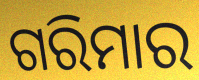
ଗରିମାର